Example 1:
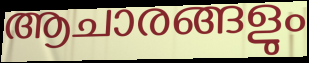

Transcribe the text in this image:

ആചാരങ്ങളും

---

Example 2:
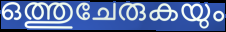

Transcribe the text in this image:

ഒത്തുചേരുകയും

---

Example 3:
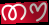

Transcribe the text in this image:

തൗ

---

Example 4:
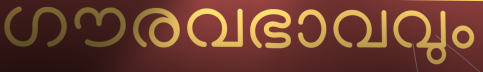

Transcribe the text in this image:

ഗൗരവഭാവവും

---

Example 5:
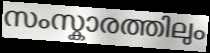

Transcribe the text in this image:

സംസ്കാരത്തിലും